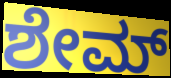
ಶೇಮ್